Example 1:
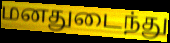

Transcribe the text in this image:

மனதுடைந்து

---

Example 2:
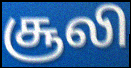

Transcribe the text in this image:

சூலி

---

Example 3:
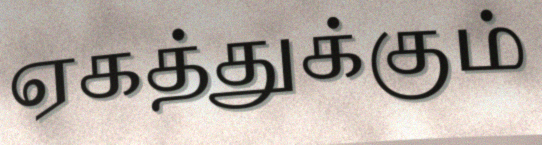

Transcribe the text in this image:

ஏகத்துக்கும்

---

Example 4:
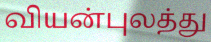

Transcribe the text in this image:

வியன்புலத்து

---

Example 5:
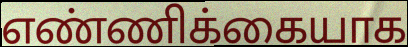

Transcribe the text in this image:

எண்ணிக்கையாக